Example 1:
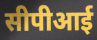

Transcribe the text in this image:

सीपीआई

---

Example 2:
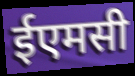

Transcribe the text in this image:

ईएमसी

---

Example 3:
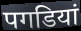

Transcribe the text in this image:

पगडियां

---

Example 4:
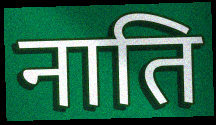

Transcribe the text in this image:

नाति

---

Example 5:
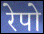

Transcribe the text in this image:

रेपो